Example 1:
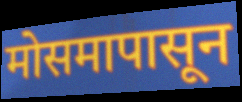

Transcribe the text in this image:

मोसमापासून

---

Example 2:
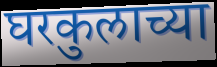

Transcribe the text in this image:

घरकुलाच्या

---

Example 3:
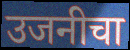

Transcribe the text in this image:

उजनीचा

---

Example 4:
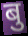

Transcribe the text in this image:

बु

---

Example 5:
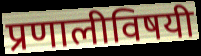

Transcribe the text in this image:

प्रणालीविषयी